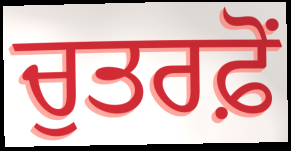
ਚੁਤਰਫ਼ੋਂ